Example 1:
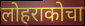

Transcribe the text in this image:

लोहराकोचा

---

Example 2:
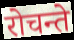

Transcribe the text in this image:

रोचन्ते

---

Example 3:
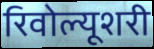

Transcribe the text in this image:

रिवोल्यूशरी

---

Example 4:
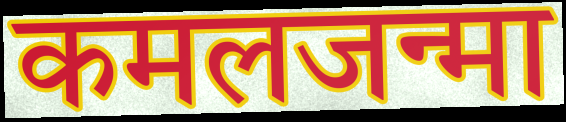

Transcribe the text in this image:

कमलजन्मा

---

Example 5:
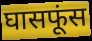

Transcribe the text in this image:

घासफूंस